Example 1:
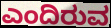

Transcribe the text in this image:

ಎಂದಿರುವ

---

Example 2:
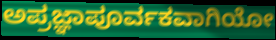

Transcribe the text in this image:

ಅಪ್ರಜ್ಞಾಪೂರ್ವಕವಾಗಿಯೋ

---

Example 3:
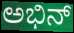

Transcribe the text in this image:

ಅಭಿನ್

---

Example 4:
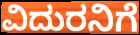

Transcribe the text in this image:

ವಿದುರನಿಗೆ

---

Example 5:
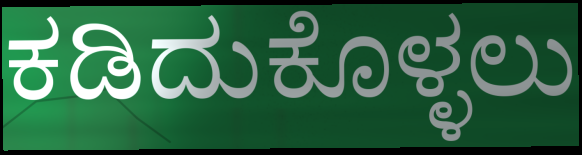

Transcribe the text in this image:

ಕಡಿದುಕೊಳ್ಳಲು